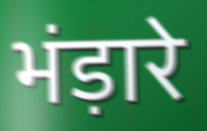
भंड़ारे